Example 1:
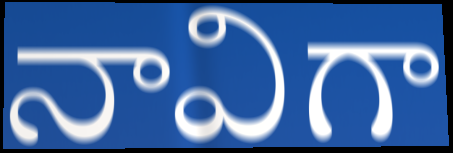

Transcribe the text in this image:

నావిగా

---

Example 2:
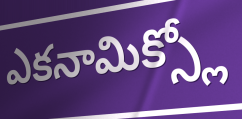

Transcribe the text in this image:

ఎకనామిక్స్లో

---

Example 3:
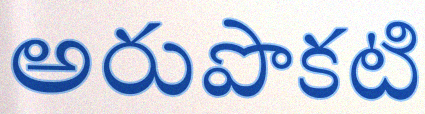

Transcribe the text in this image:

అరుపొకటి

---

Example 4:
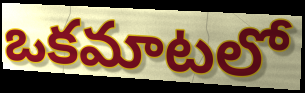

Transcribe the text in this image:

ఒకమాటలో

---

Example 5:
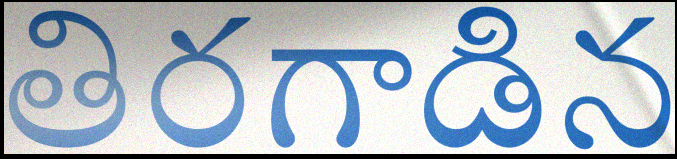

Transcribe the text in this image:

తిరగాడిన